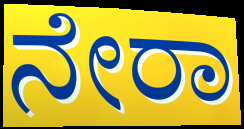
ನೇರಾ